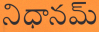
నిధానమ్